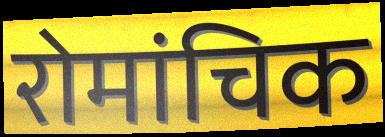
रोमांचिक